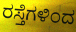
ರಸ್ತೆಗಳಿಂದ